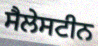
ਸੈਲੇਸਟੀਨ